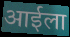
आईला